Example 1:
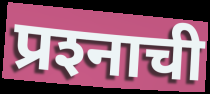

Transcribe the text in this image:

प्रश्‍नाची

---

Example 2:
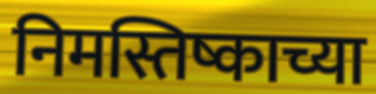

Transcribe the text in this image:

निमस्तिष्काच्या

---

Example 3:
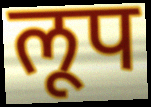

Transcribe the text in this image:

लूप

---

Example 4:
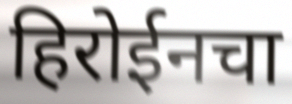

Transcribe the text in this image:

हिरोईनचा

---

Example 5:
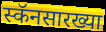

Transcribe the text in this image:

स्कॅनसारख्या